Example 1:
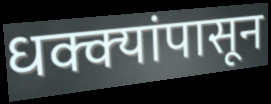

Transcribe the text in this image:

धक्क्यांपासून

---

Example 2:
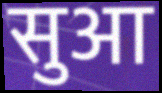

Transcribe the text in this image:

सुआ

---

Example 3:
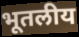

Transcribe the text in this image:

भूतलीय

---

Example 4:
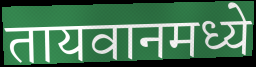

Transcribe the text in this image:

तायवानमध्ये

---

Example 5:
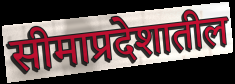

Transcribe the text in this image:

सीमाप्रदेशातील